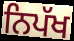
ਨਿਪੱਖ